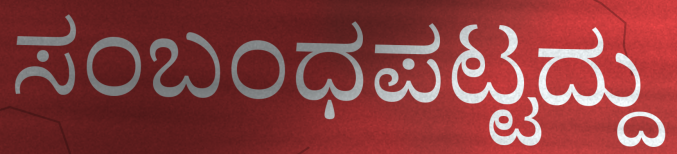
ಸಂಬಂಧಪಟ್ಟದ್ದು